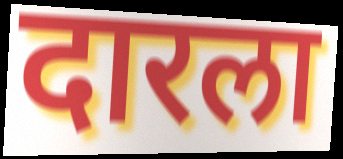
दारला